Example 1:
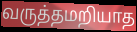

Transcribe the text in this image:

வருத்தமறியாத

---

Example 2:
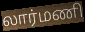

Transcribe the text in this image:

லார்மணி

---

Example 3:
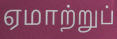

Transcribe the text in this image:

ஏமாற்றுப்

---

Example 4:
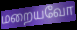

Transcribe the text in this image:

மறையவோ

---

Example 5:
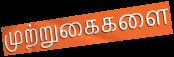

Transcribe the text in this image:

முற்றுகைகளை